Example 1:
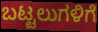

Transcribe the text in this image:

ಬಟ್ಟಲುಗಳಿಗೆ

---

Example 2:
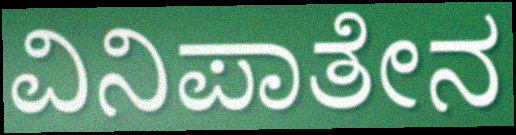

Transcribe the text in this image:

ವಿನಿಪಾತೇನ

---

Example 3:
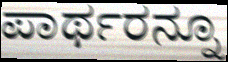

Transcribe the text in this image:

ಪಾರ್ಥರನ್ನೂ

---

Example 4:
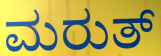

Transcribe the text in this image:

ಮರುತ್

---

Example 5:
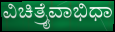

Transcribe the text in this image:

ವಿಚಿತ್ರೈವಾಭಿಧಾ